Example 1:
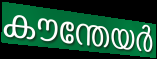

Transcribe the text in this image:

കൗന്തേയർ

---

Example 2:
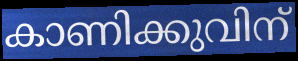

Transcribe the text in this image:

കാണിക്കുവിന്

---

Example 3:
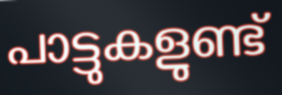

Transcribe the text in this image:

പാട്ടുകളുണ്ട്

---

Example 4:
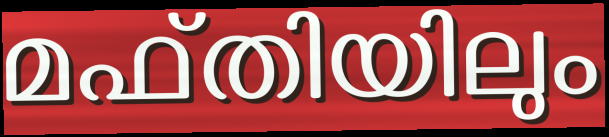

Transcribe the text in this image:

മഫ്തിയിലും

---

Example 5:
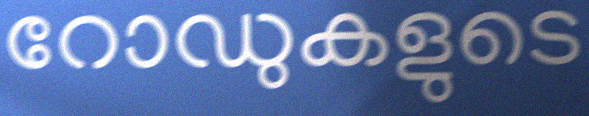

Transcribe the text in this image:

റോഡുകളുടെ